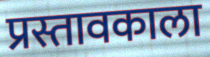
प्रस्तावकाला